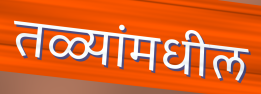
तळ्यांमधील